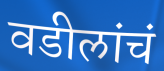
वडीलांचं